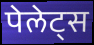
पेलेट्स